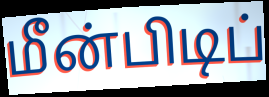
மீன்பிடிப்